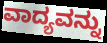
ವಾದ್ಯವನ್ನು